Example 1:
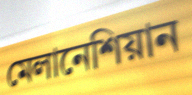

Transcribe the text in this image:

মেলানেশিয়ান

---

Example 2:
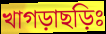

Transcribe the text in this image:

খাগড়াছড়িঃ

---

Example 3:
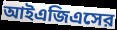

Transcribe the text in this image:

আইএজিএসের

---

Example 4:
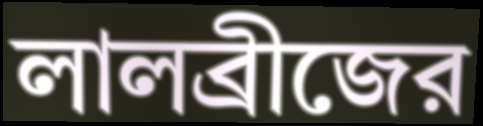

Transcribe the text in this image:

লালব্রীজের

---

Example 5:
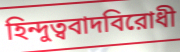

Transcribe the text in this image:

হিন্দুত্ববাদবিরোধী